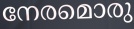
നേരമൊരു